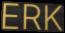
ERK